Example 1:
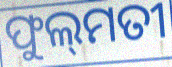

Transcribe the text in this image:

ଫୁଲ୍‍ମତୀ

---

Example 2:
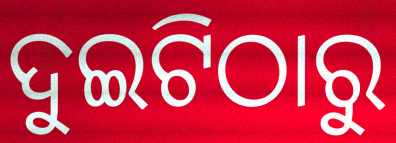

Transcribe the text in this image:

ଦୁଇଟିଠାରୁ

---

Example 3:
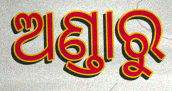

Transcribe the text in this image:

ଅଣ୍ଡାରୁ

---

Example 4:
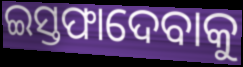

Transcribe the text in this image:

ଇସ୍ତଫାଦେବାକୁ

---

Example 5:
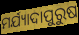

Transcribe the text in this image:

ମର୍ଯ୍ୟାଦାପୁରୁଷ